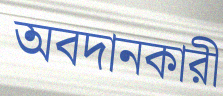
অবদানকারী